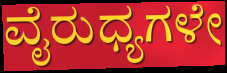
ವೈರುಧ್ಯಗಳೇ